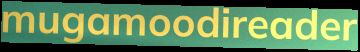
mugamoodireader